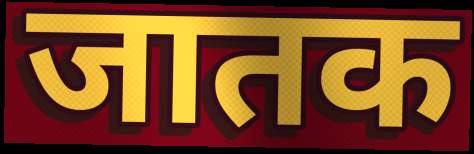
जातक